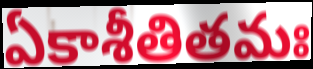
ఏకాశీతితమః